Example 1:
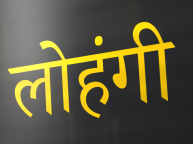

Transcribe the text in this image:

लोहंगी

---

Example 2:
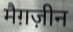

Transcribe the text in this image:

मैग़ज़ीन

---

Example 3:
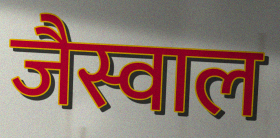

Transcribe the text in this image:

जैस्वाल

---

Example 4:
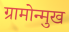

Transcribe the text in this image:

ग्रामोन्मुख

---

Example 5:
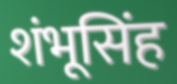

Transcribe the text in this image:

शंभूसिंह